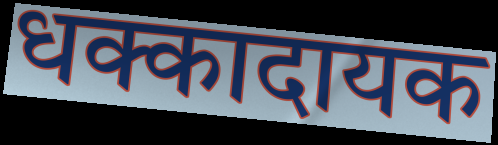
धक्कादायक